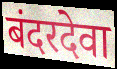
बंदरदेवा